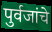
पुर्वजांचे